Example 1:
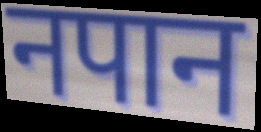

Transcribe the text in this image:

नपान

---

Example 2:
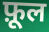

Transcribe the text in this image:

फ़ूल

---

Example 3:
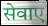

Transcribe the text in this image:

सेवाए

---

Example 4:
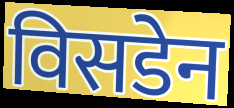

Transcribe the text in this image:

विसडेन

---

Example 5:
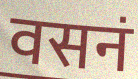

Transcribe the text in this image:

वसनं